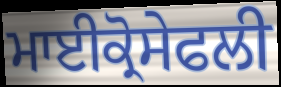
ਮਾਈਕ੍ਰੋਸੇਫਲੀ